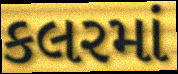
કલરમાં